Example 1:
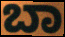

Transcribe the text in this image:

ಬಾ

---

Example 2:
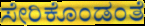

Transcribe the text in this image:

ಸೇರಿಕೊಂಡಂತೆ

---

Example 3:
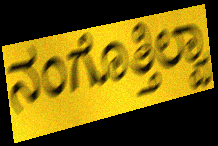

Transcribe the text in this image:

ನಂಗೊತ್ತಿಲ್ವಾ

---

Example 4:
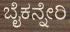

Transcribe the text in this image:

ಬೈಕನ್ನೇರಿ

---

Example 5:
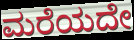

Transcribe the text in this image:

ಮರೆಯದೇ